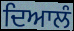
ਦਿਆਲੰ